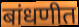
बांधणीत